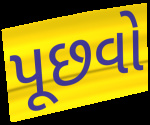
પૂછવો